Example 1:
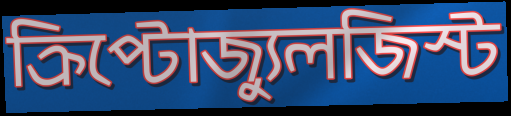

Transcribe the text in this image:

ক্রিপ্টোজ্যুলজিস্ট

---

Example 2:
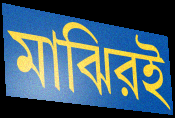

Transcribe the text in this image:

মাঝিরই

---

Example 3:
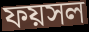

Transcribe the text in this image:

ফয়সল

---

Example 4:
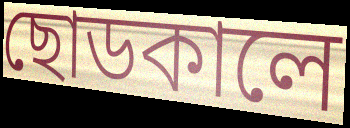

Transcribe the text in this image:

ছোডকালে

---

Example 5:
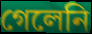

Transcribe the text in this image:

গেলেনি